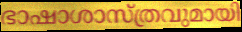
ഭാഷാശാസ്ത്രവുമായി